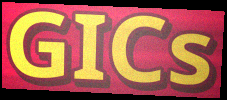
GICs